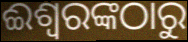
ଈଶ୍ଵରଙ୍କଠାରୁ